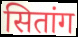
सितांग